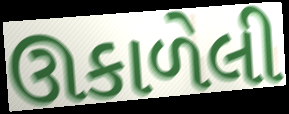
ઊકાળેલી